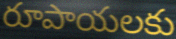
రూపాయలకు